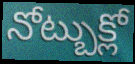
నోట్బుక్లో